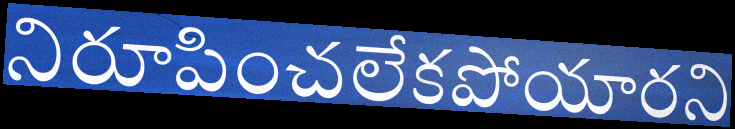
నిరూపించలేకపోయారని